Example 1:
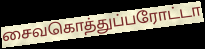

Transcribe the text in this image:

சைவகொத்துப்பரோட்டா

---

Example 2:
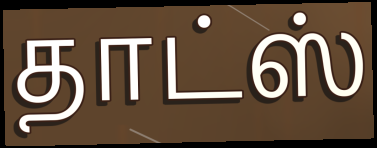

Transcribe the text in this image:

தாட்ஸ்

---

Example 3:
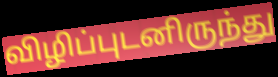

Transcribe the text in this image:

விழிப்புடனிருந்து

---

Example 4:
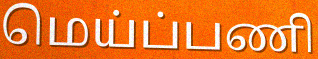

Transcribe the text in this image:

மெய்ப்பணி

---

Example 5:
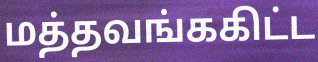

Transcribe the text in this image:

மத்தவங்ககிட்ட